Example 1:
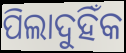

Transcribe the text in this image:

ପିଲାଦୁହିଁକ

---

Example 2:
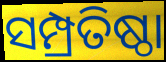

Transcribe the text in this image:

ସମ୍ପ୍ରତିଷ୍ଠା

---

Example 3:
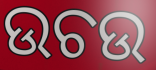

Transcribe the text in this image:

ଉଚଉ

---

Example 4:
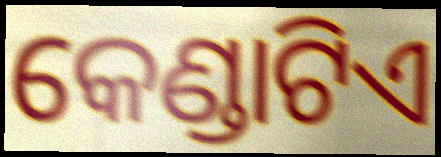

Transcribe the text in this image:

କେଣ୍ଡାଟିଏ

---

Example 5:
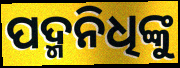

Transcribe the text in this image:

ପଦ୍ମନିଧିଙ୍କୁ